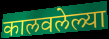
कालवलेल्या